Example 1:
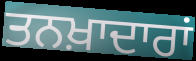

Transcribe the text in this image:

ਤਨਖ਼ਾਦਾਰਾਂ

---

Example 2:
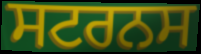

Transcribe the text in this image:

ਸਟਰਨਸ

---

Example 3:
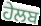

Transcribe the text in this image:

ਹੇਲਬ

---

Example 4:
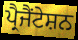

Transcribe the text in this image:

ਪ੍ਰੈਜੈਂਟੇਸ਼ਨ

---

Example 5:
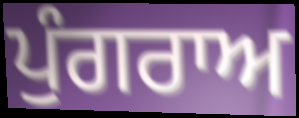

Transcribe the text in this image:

ਪੁੰਗਰਾਅ